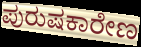
ಪುರುಷಕಾರೇಣ